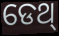
ଡେଥ୍